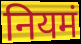
नियमं